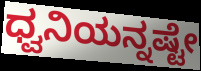
ಧ್ವನಿಯನ್ನಷ್ಟೇ